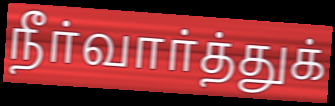
நீர்வார்த்துக்